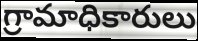
గ్రామాధికారులు